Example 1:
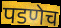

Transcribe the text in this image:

पडणेच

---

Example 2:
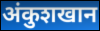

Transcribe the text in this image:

अंकुशखान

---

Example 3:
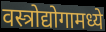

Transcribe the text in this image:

वस्त्रोद्योगामध्ये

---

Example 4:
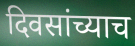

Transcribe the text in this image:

दिवसांच्याच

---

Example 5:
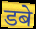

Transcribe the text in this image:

डबे